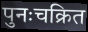
पुनःचक्रित